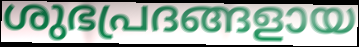
ശുഭപ്രദങ്ങളായ